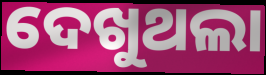
ଦେଖୁଥଲା